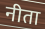
नीता